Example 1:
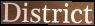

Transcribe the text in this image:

District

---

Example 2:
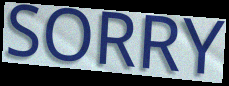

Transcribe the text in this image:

SORRY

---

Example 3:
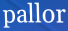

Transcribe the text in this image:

pallor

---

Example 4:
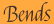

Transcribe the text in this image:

Bends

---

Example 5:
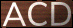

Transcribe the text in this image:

ACD